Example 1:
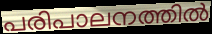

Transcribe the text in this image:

പരിപാലനത്തിൽ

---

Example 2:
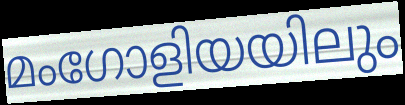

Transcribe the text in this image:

മംഗോളിയയിലും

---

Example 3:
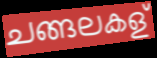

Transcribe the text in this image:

ചങ്ങലകള്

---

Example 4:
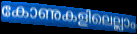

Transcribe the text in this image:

കോണുകളിലെല്ലാം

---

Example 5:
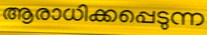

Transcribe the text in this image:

ആരാധിക്കപ്പെടുന്ന